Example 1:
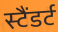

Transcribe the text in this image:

स्टैंडर्ट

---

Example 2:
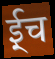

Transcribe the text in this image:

ई्च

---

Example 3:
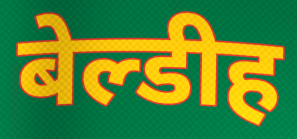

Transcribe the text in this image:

बेल्डीह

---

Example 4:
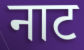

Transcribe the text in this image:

नाट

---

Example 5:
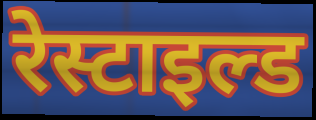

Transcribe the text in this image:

रेस्टाइल्ड